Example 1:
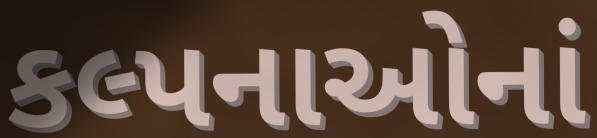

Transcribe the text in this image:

કલ્પનાઓનાં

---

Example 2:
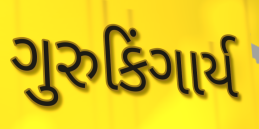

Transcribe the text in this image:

ગુરુકિંગાર્ય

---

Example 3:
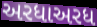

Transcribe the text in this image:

અરધાઅરધ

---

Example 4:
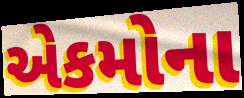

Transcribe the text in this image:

એકમોના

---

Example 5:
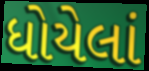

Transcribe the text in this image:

ધોયેલાં